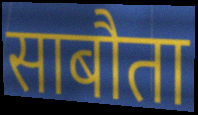
साबौता